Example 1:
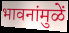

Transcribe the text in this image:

भावनांमुळें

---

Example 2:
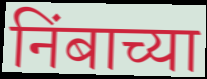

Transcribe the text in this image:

निंबाच्या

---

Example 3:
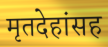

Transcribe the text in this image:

मृतदेहांसह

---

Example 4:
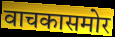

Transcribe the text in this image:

वाचकासमोर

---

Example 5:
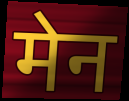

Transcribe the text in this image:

मेन